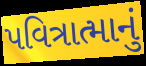
પવિત્રાત્માનું